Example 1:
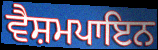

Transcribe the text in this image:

ਵੈਸ਼ਮਪਾਇਨ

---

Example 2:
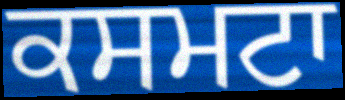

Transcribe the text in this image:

ਕਸਮਟਾ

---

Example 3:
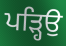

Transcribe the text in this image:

ਪੜ੍ਹਿਉ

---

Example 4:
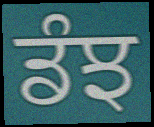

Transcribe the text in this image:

ਡੰਝ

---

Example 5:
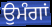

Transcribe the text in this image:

ਉਮੰਗਾਂ